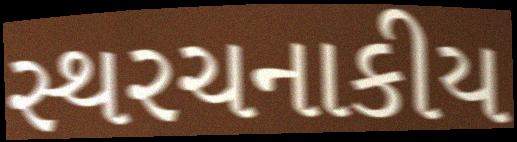
સ્થરચનાકીય